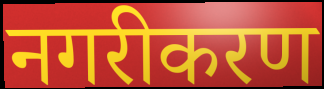
नगरीकरण